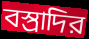
বস্ত্রাদির